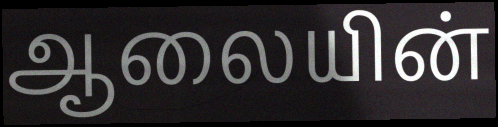
ஆலையின்